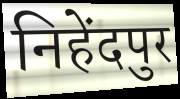
निहेंदपुर